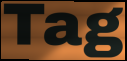
Tag